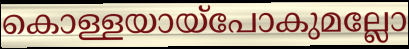
കൊള്ളയായ്പോകുമല്ലോ